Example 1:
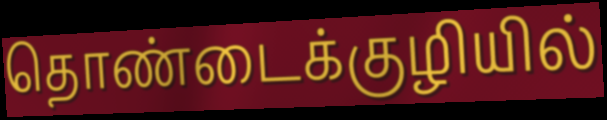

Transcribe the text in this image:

தொண்டைக்குழியில்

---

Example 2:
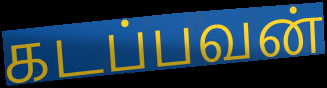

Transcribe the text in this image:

கடப்பவன்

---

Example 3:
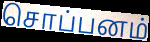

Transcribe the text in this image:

சொப்பனம்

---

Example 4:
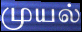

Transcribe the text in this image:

முயல்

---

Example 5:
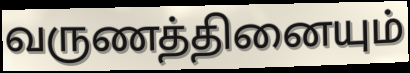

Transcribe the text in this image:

வருணத்தினையும்